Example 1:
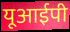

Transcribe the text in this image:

यूआईपी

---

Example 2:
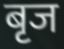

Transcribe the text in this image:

बृज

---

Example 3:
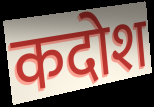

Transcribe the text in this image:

कदोश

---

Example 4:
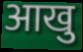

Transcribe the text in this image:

आखु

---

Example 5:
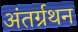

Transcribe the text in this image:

अंतर्ग्रथन